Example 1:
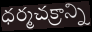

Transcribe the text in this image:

ధర్మచక్రాన్ని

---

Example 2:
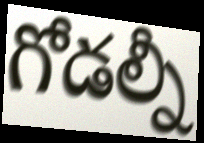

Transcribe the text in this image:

గోడల్నీ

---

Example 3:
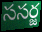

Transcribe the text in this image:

ససర్జ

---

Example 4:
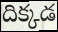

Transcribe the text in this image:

దిక్కడ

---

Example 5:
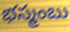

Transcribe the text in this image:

భస్మంబు